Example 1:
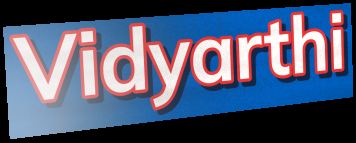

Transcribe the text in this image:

Vidyarthi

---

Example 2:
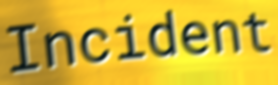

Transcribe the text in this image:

Incident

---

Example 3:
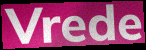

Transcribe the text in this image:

Vrede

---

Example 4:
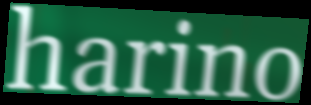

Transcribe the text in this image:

harino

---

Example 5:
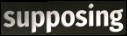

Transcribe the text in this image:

supposing